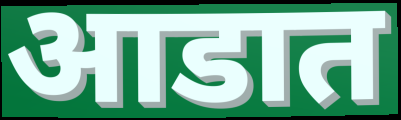
आडात